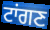
ਟਾਂਗਣ